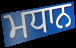
ਮਧਾਨ